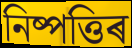
নিষ্পত্তিৰ